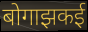
बोगाझकई